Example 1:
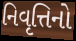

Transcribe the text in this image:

નિવૃત્તિનો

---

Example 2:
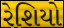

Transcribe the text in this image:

રેશિયો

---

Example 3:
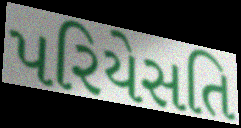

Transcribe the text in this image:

પરિયેસતિ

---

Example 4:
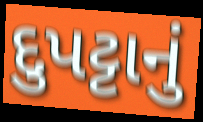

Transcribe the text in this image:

દુપટ્ટાનું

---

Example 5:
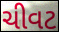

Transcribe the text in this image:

ચીવટ